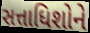
સત્તાધિશોને